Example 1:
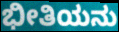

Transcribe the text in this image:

ಭೀತಿಯನು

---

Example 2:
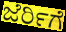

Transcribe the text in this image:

ಜೆರ್ರಿಗೆ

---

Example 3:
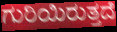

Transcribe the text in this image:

ಗುರಿಯಿರುತ್ತದೆ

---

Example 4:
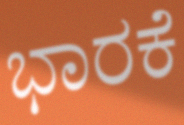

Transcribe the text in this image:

ಭಾರಕೆ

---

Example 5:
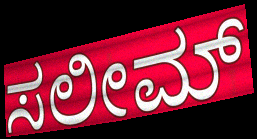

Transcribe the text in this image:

ಸಲೀಮ್